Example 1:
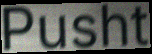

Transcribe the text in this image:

Pusht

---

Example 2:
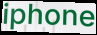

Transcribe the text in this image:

iphone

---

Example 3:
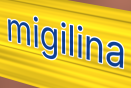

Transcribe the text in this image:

migilina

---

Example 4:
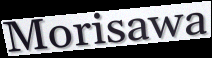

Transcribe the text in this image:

Morisawa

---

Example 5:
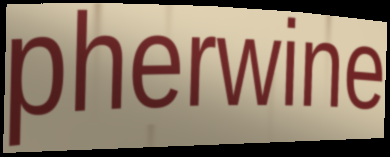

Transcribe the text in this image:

pherwine